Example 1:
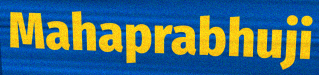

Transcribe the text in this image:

Mahaprabhuji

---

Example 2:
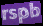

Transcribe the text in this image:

rspb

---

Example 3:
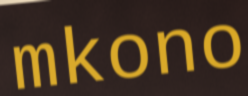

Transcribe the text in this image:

mkono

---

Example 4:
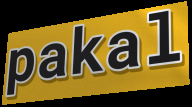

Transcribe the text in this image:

pakal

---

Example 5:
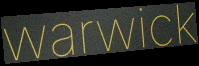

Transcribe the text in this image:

warwick